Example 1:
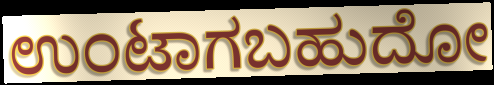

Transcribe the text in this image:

ಉಂಟಾಗಬಹುದೋ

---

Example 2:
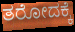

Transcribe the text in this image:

ತರೋದಕ್ಕೆ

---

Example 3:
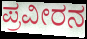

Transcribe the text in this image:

ಪ್ರವೀರನ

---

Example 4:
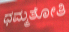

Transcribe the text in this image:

ಧಮ್ಮತೋತಿ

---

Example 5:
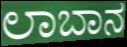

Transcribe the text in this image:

ಲಾಬಾನ